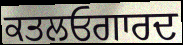
ਕਤਲਓਗਾਰਦ